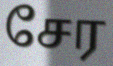
சேர